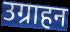
उग्राहन